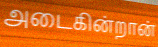
அடைகின்றான்